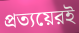
প্রত্যয়েরই